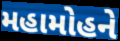
મહામોહને